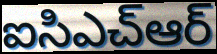
ఐసిఎచ్ఆర్